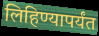
लिहिण्यापर्यंत